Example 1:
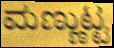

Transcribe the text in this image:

ಮಣ್ಣುಟ್ಟ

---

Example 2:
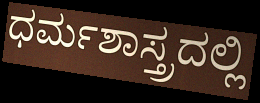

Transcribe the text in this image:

ಧರ್ಮಶಾಸ್ತ್ರದಲ್ಲಿ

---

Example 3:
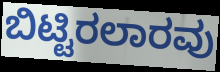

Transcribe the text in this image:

ಬಿಟ್ಟಿರಲಾರವು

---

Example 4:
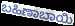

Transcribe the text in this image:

ಬಹಿಣಾಬಾಯಿ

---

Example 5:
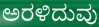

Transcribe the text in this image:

ಅರಳಿದುವು